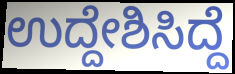
ಉದ್ದೇಶಿಸಿದ್ದೆ